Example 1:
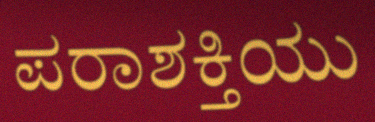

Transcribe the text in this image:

ಪರಾಶಕ್ತಿಯು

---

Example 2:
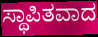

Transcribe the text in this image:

ಸ್ಥಾಪಿತವಾದ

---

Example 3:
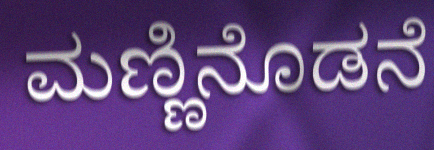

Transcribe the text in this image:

ಮಣ್ಣಿನೊಡನೆ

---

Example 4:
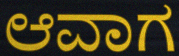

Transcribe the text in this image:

ಆವಾಗ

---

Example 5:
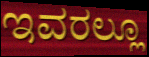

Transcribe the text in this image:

ಇವರಲ್ಲೂ